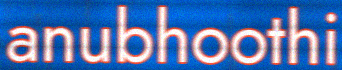
anubhoothi